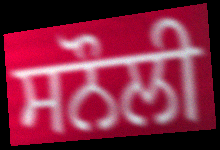
ਸਨੌਲੀ